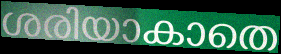
ശരിയാകാതെ